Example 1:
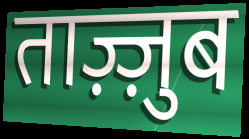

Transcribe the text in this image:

ताज़्ज़ुब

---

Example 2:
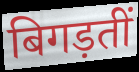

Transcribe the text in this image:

बिगड़तीं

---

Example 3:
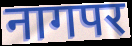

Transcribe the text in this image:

नागपर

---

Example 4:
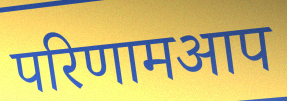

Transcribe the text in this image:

परिणामआप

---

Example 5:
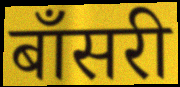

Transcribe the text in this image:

बाँसरी